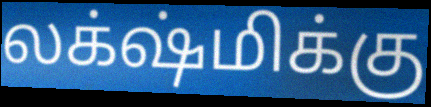
லக்‌ஷ்மிக்கு